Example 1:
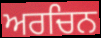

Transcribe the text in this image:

ਅਰਚਿਨ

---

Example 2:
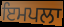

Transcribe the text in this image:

ਇਮਪਲਾ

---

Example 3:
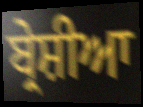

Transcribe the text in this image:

ਬ੍ਰੇਸ਼ੀਆ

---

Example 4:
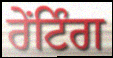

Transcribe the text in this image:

ਰੇਂਟਿੰਗ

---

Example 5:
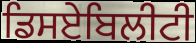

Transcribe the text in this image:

ਡਿਸਏਬਿਲੀਟੀ